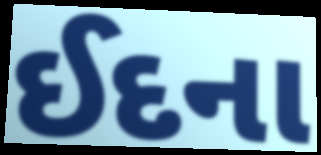
ઈદના